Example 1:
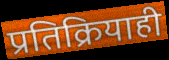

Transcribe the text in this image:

प्रतिक्रियाही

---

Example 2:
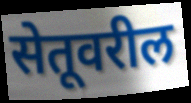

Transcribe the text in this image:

सेतूवरील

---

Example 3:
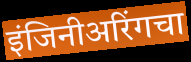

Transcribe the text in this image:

इंजिनीअरिंगचा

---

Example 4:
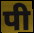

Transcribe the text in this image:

पी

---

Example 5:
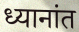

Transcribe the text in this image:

ध्यानांत